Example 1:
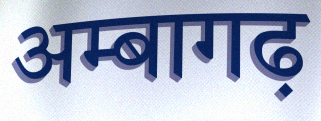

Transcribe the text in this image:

अम्बागढ़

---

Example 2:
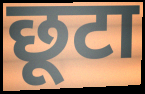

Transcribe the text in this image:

छूटा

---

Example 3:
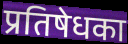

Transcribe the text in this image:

प्रतिषेधका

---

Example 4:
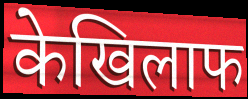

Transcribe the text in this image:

केखिलाफ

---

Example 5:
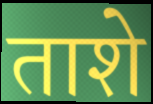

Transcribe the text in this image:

ताशे